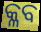
କ୍ଳବ